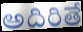
అదిరితే